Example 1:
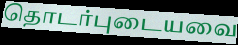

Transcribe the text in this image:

தொடர்புடையவை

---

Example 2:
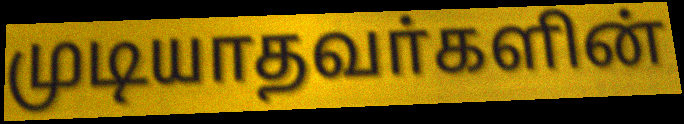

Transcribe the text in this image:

முடியாதவர்களின்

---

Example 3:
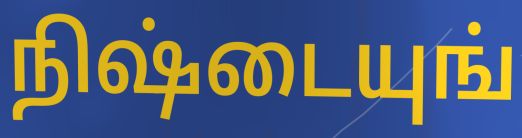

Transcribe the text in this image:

நிஷ்டையுங்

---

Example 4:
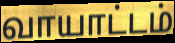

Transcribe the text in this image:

வாயாட்டம்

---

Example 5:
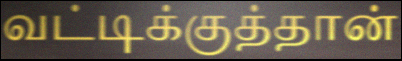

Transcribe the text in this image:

வட்டிக்குத்தான்